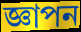
জ্ঞাপন